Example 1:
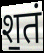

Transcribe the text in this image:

श॒तं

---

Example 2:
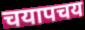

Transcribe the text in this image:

चयापचय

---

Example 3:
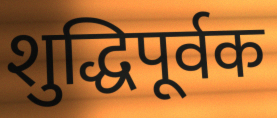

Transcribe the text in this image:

शुद्धिपूर्वक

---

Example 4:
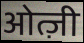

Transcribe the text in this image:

ओत्ज़ी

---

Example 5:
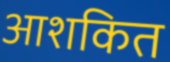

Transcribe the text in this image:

आशकित